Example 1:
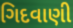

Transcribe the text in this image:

ગિદવાણી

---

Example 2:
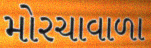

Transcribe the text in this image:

મોરચાવાળા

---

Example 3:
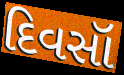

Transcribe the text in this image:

દિવસૉ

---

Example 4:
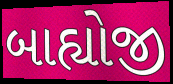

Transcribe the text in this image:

બાહ્યોજી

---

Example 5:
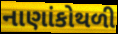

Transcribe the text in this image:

નાણાંકોથળી